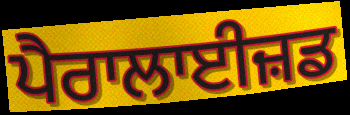
ਪੈਰਾਲਾਈਜ਼ਡ